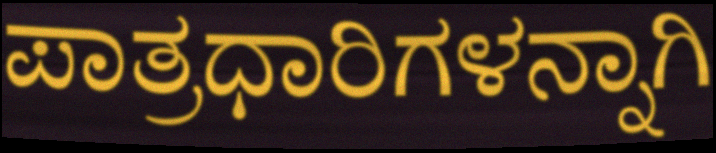
ಪಾತ್ರಧಾರಿಗಳನ್ನಾಗಿ